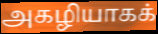
அகழியாகக்